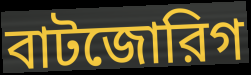
বাটজোরিগ